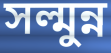
সল্মুন্ন